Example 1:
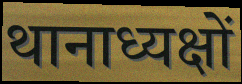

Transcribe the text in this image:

थानाध्यक्षों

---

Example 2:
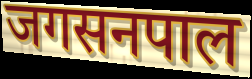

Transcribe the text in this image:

जगसनपाल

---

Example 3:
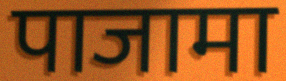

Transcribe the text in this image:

पाजामा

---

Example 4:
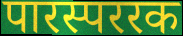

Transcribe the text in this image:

पारस्पररक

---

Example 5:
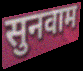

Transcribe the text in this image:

सुनवाम